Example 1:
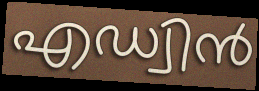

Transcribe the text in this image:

എഡ്വിൻ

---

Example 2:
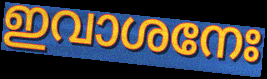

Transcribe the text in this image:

ഇവാശനേഃ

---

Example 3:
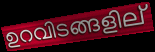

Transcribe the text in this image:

ഉറവിടങ്ങളില്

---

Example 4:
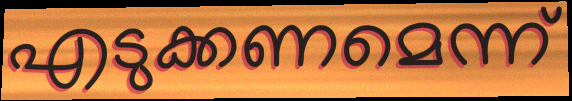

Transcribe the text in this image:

എടുക്കണമെന്ന്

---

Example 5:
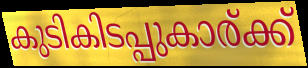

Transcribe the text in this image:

കുടികിടപ്പുകാര്ക്ക്